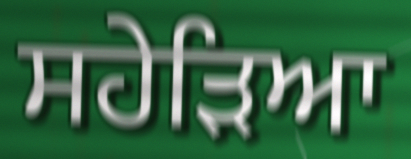
ਸਹੇੜਿਆ